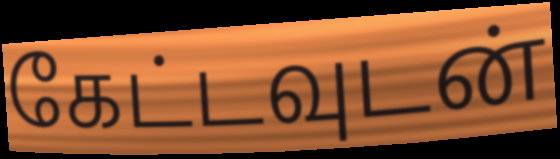
கேட்டவுடன்